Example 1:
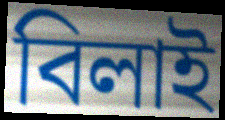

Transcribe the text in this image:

বিলাই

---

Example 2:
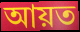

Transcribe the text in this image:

আয়ত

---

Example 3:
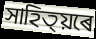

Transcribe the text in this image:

সাহিত্য়ৰে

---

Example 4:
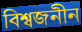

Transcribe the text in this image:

বিশ্বজনীন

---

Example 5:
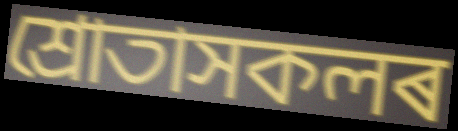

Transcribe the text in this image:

শ্ৰোতাসকলৰ